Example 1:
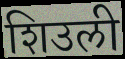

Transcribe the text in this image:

शिउली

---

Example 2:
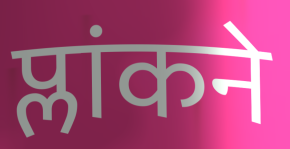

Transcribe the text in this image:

प्लांकने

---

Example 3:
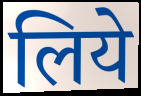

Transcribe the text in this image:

लिये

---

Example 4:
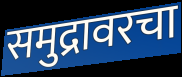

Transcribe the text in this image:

समुद्रावरचा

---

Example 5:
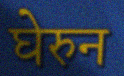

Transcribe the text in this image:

घेरुन